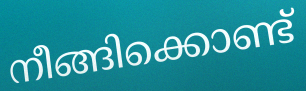
നീങ്ങിക്കൊണ്ട്